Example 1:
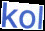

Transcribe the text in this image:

kol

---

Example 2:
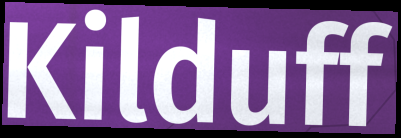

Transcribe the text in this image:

Kilduff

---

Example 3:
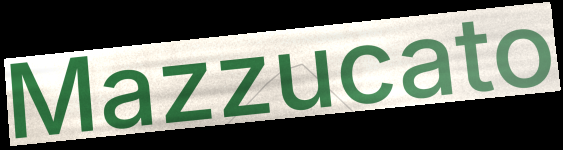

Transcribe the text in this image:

Mazzucato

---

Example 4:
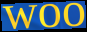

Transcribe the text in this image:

woo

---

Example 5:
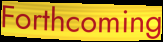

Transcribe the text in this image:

Forthcoming